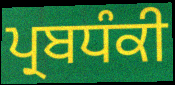
ਪ੍ਰਬਧੰਕੀ